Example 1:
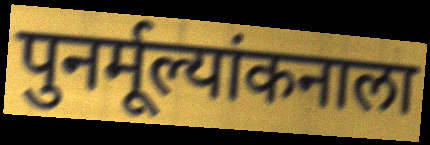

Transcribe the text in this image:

पुनर्मूल्यांकनाला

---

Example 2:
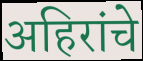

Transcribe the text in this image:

अहिरांचे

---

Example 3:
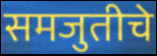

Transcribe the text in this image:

समजुतीचे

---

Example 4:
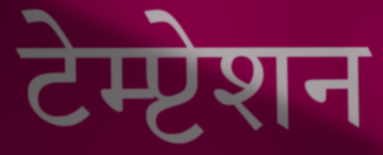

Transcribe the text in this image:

टेम्प्टेशन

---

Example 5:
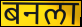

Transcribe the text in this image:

बनला